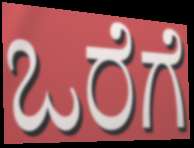
ಒರೆಗೆ